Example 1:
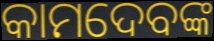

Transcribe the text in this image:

କାମଦେବଙ୍କ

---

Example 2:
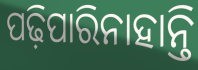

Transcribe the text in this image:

ପଢ଼ିପାରିନାହାନ୍ତି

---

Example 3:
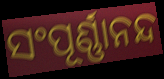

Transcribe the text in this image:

ସଂପୂର୍ଣ୍ଣାନନ୍ଦ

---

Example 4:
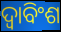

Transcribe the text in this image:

ଦ୍ଵାବିଂଶ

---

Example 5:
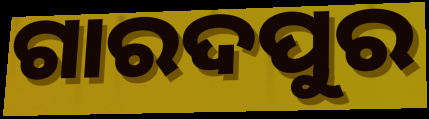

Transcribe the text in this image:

ଗାରଦପୁର